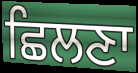
ਛਿਲਣਾ